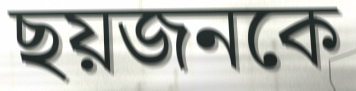
ছয়জনকে